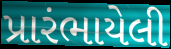
પ્રારંભાયેલી